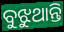
ବୁଝୁଥାନ୍ତି